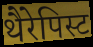
थैरेपिस्ट